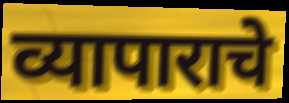
व्यापाराचे